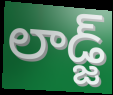
లాడ్జ్